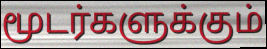
மூடர்களுக்கும்